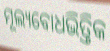
ମୂଲ୍ୟବୋଧଭିତ୍ତିକ